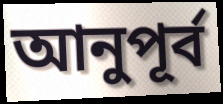
আনুপূর্ব